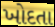
ખોદતા